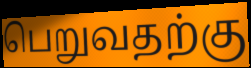
பெறுவதற்கு